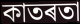
কাতৰতা